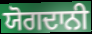
ਯੋਗਦਾਨੀ